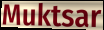
Muktsar